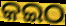
କଇଠ